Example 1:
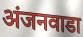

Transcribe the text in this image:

अंजनवाडा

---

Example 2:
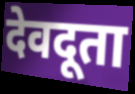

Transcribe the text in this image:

देवदूता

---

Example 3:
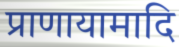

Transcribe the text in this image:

प्राणायामादि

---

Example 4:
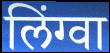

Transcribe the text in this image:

लिंग्वा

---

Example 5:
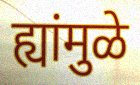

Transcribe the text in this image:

ह्यांमुळे